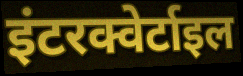
इंटरक्वेर्टाइल